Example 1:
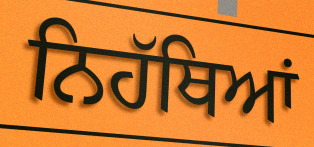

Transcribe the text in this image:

ਨਿਹੱਥਿਆਂ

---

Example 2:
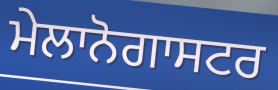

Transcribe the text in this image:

ਮੇਲਾਨੋਗਾਸਟਰ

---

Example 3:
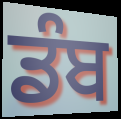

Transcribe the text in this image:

ਡੰਬ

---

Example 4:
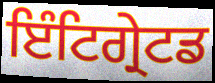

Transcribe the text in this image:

ਇੰਟਿਗ੍ਰੇਟਡ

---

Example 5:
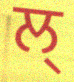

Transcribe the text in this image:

ਲ੍